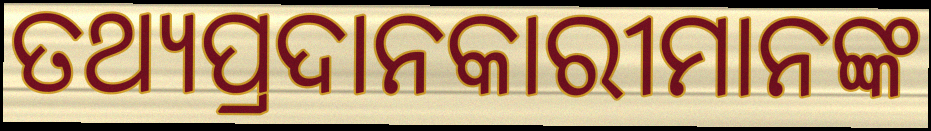
ତଥ୍ୟପ୍ରଦାନକାରୀମାନଙ୍କ